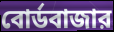
বোর্ডবাজার